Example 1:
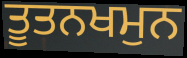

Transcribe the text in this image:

ਤੂਤਨਖਮੁਨ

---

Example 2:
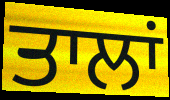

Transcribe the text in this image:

ਤਾਲਾਂ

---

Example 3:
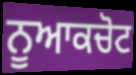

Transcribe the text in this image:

ਨੂਆਕਚੋਟ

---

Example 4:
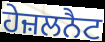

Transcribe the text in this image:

ਹੇਜ਼ਲਨੈਟ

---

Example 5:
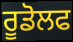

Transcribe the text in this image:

ਰੂਡੋਲਫ